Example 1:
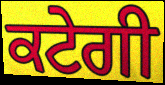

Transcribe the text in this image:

ਕਟੇਗੀ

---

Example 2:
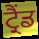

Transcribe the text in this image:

ਟ੍ਰੈਂਡ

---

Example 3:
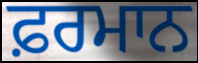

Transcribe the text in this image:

ਫ਼ਰਮਾਨ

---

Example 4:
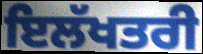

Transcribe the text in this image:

ਇਲੱਖਤਰੀ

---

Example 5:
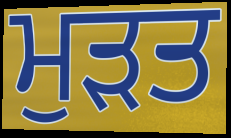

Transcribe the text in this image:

ਮੁੜਤ